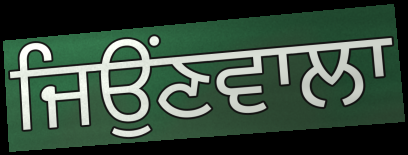
ਜਿਉਂਣਵਾਲਾ